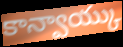
కాన్వాయ్కు